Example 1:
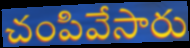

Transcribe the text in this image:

చంపివేసారు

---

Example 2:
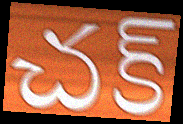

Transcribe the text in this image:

చక్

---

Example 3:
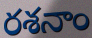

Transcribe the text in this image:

రశనాం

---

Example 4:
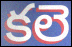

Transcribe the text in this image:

కలె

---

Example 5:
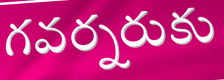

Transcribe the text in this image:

గవర్నరుకు